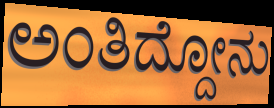
ಅಂತಿದ್ದೋನು